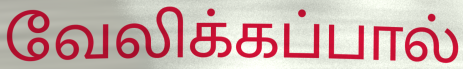
வேலிக்கப்பால்